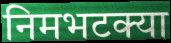
निमभटक्या